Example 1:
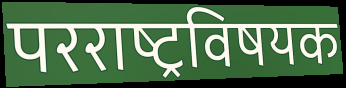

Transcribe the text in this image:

परराष्ट्रविषयक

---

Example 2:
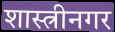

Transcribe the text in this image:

शास्त्रीनगर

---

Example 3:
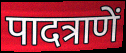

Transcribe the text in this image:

पादत्राणें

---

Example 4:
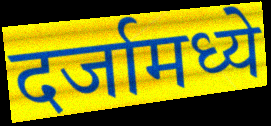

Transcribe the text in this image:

दर्जामध्ये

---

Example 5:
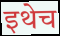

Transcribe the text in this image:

इथेच